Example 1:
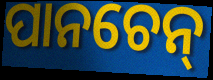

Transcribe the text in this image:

ପାନଚେନ୍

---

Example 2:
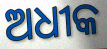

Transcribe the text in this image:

ଅଧୀକ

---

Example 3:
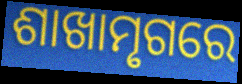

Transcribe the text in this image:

ଶାଖାମୃଗରେ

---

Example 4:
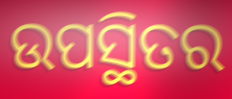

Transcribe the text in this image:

ଉପସ୍ଥିତର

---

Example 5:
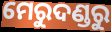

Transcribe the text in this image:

ମେରୁଦଣ୍ଡରୁ